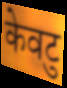
केवटु